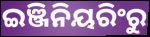
ଇଞ୍ଜିନିୟରିଂରୁ